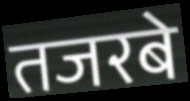
तजरबे